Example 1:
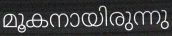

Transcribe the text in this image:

മൂകനായിരുന്നു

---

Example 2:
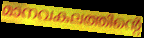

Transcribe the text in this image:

മാനവകുലത്തിന്റെ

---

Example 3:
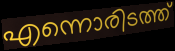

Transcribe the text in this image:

എന്നൊരിടത്ത്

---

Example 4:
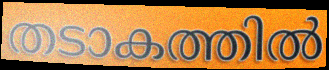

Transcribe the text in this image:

തടാകത്തിൽ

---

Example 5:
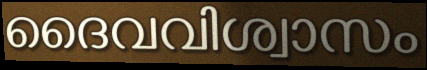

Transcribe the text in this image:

ദൈവവിശ്വാസം